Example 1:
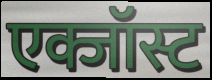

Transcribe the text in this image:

एक्जॉस्ट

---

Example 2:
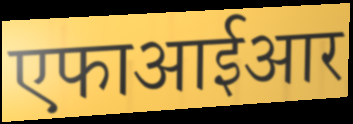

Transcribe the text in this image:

एफाआईआर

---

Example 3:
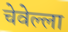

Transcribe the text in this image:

चेवेल्ला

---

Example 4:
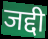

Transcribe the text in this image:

जद्दी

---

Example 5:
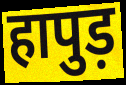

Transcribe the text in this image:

हापुड़